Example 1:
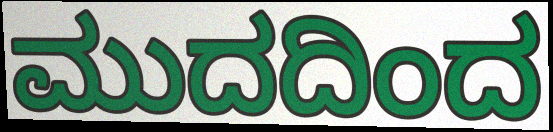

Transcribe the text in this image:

ಮುದದಿಂದ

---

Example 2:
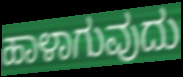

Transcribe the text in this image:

ಹಾಳಾಗುವುದು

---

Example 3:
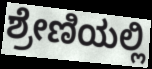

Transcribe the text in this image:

ಶ್ರೇಣಿಯಲ್ಲಿ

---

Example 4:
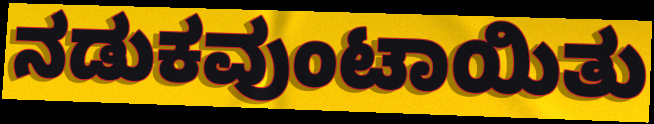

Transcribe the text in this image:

ನಡುಕವುಂಟಾಯಿತು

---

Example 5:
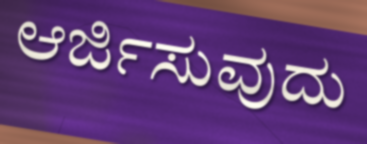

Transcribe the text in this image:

ಆರ್ಜಿಸುವುದು